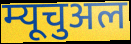
म्यूचुअल